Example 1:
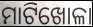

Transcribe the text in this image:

ମାଟିଖୋଳା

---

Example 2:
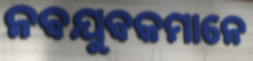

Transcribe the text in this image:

ନବଯୁବକମାନେ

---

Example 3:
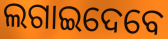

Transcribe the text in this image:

ଲଗାଇଦେବେ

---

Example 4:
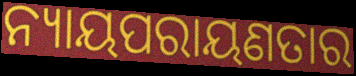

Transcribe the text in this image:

ନ୍ୟାୟପରାୟଣତାର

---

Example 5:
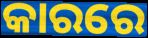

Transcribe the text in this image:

କାରରେ